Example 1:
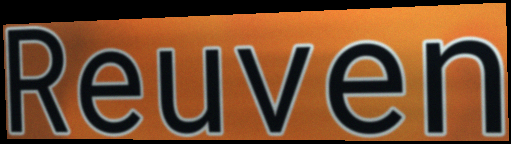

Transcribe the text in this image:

Reuven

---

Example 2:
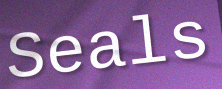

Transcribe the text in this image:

Seals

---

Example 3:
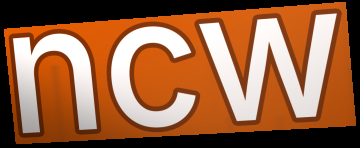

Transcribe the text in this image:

ncw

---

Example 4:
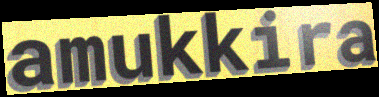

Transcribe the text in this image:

amukkira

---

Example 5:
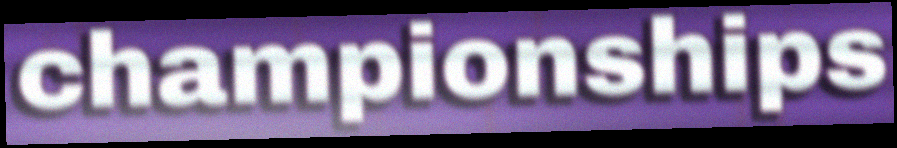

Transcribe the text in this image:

championships